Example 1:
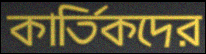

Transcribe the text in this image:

কার্তিকদের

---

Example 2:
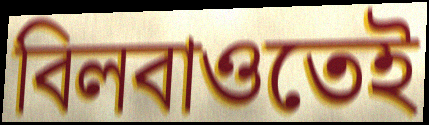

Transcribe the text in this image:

বিলবাওতেই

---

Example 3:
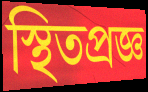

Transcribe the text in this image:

স্থিতপ্রজ্ঞ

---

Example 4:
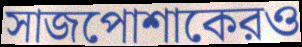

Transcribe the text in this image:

সাজপোশাকেরও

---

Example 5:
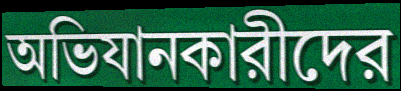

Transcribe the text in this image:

অভিযানকারীদের